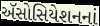
ઍસોસિયેશનનાં